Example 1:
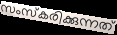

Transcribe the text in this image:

സംസ്കരിക്കുന്നത്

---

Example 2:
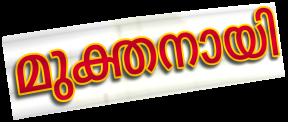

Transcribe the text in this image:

മുക്തനായി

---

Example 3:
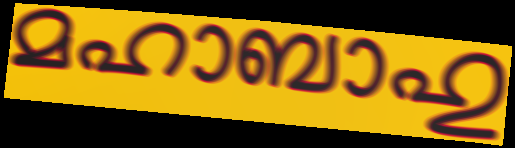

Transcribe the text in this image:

മഹാബാഹു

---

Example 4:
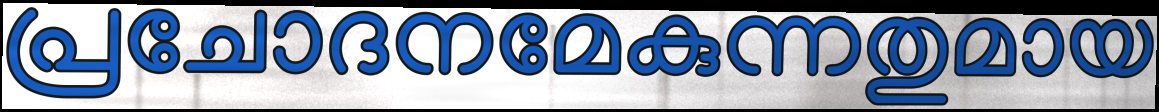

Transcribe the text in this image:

പ്രചോദനമേകുന്നതുമായ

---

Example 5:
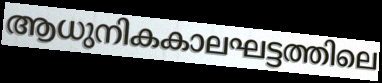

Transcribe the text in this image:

ആധുനികകാലഘട്ടത്തിലെ